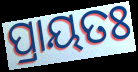
ପ୍ରାୟତଃ